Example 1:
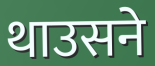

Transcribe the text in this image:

थाउसने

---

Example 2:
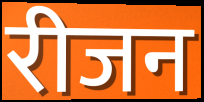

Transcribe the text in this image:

रीजन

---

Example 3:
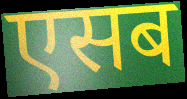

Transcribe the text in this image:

एसब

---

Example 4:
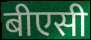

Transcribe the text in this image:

बीएसी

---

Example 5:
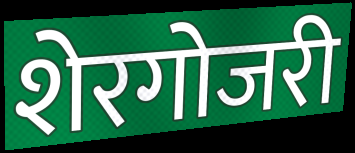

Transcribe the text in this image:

शेरगोजरी